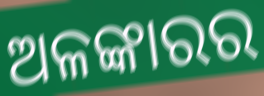
ଅଳଙ୍କାରର